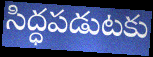
సిద్ధపడుటకు